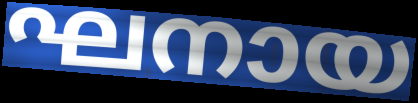
ഘനായ